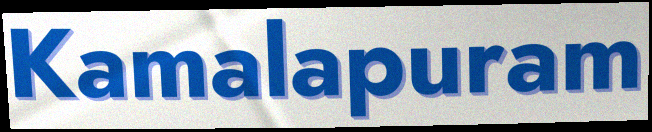
Kamalapuram